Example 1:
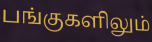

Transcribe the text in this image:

பங்குகளிலும்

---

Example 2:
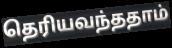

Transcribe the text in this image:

தெரியவந்ததாம்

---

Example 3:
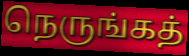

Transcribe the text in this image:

நெருங்கத்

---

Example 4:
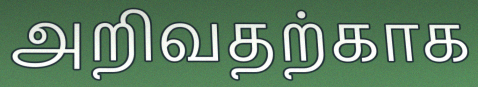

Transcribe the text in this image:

அறிவதற்காக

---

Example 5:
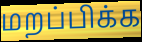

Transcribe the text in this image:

மறப்பிக்க